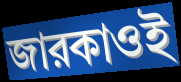
জারকাওই